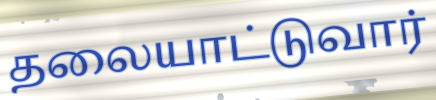
தலையாட்டுவார்